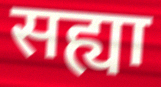
सह्या